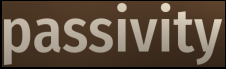
passivity